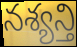
నశ్యన్తి